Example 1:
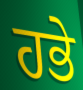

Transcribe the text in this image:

ਹਭੇ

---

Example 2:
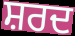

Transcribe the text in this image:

ਸ਼ਰਦ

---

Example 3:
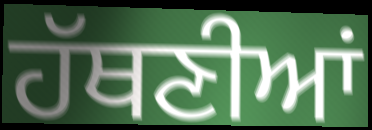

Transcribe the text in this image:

ਹੱਥਣੀਆਂ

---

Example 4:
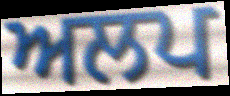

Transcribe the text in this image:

ਅਲਪ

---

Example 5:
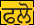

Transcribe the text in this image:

ਫਲੋ